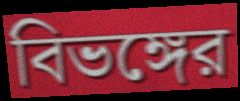
বিভঙ্গের